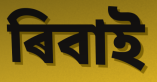
ৰিবাই